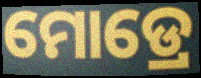
ମୋଡ୍ରେ